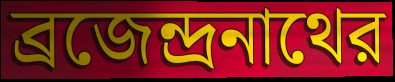
ব্রজেন্দ্রনাথের